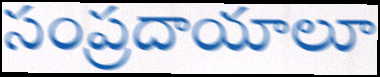
సంప్రదాయాలూ